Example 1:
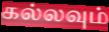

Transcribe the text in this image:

கல்லவும்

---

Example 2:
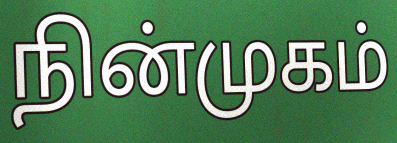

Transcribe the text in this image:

நின்முகம்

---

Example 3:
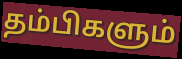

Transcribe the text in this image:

தம்பிகளும்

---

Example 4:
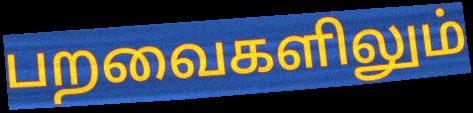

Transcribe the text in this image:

பறவைகளிலும்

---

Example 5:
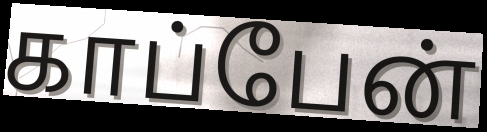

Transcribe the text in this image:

காப்பேன்